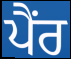
ਪੈਂਰ